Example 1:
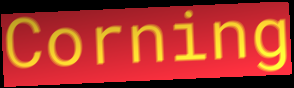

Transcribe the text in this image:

Corning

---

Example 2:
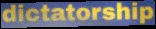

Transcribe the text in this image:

dictatorship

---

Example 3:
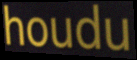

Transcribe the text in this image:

houdu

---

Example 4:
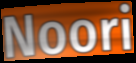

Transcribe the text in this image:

Noori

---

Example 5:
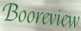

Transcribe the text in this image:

Booreview